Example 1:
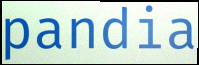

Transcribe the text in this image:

pandia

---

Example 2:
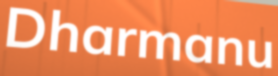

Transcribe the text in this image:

Dharmanu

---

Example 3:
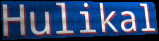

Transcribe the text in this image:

Hulikal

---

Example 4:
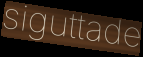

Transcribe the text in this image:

siguttade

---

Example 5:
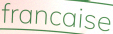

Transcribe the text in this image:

francaise